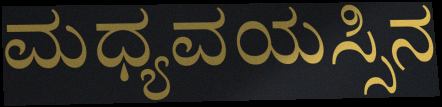
ಮಧ್ಯವಯಸ್ಸಿನ